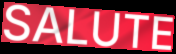
SALUTE